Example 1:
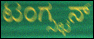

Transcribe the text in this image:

ಟಂಗ್ಸ್ಟನ್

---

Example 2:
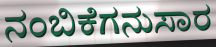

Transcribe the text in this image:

ನಂಬಿಕೆಗನುಸಾರ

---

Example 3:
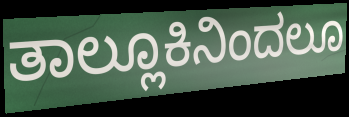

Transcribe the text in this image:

ತಾಲ್ಲೂಕಿನಿಂದಲೂ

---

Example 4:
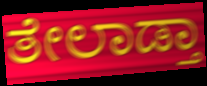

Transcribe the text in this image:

ತೇಲಾಡ್ತಾ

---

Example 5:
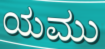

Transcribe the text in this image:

ಯಮು